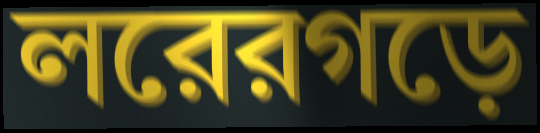
লরেরগড়ে